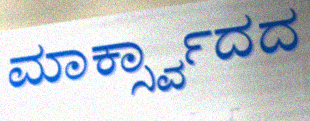
ಮಾರ್ಕ್ಸ್ವಾದದ